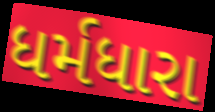
ધર્મધારા